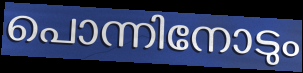
പൊന്നിനോടും